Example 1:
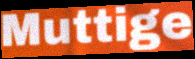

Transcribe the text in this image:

Muttige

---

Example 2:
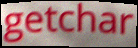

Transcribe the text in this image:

getchar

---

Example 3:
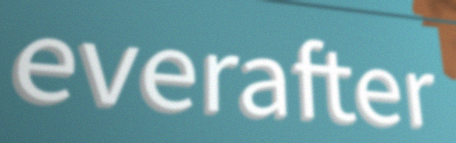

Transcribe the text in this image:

everafter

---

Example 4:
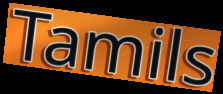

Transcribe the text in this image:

Tamils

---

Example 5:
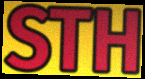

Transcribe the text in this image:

STH